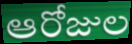
ఆరోజుల